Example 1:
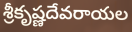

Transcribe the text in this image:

శ్రీకృష్ణదేవరాయల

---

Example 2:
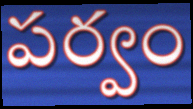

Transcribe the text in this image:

పర్వం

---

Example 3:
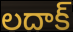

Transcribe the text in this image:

లదాక్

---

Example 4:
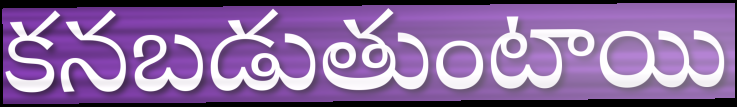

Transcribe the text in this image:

కనబడుతుంటాయి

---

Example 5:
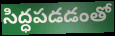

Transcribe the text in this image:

సిద్ధపడడంతో